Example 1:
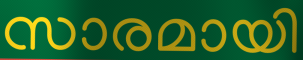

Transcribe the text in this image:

സാരമായി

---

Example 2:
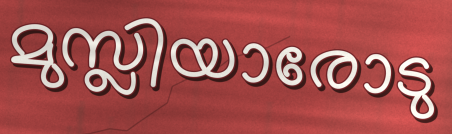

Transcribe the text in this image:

മുസ്ലിയാരോടു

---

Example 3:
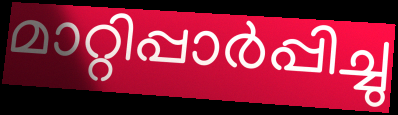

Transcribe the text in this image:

മാറ്റിപ്പാർപ്പിച്ചു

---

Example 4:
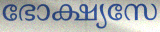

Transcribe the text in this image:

ഭോക്ഷ്യസേ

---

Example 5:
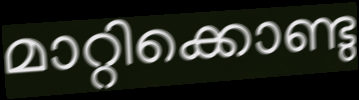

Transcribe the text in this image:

മാറ്റിക്കൊണ്ടു